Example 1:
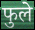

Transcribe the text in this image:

फुले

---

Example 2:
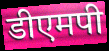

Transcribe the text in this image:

डीएमपी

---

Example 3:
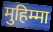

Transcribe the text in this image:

मुहिम्मा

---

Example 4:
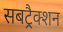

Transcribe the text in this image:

सबट्रैक्शन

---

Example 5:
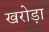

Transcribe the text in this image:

खरोड़ा